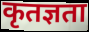
कृतज्ञता